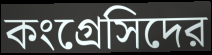
কংগ্রেসিদের